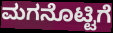
ಮಗನೊಟ್ಟಿಗೆ